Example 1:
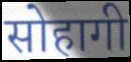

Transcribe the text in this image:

सोहागी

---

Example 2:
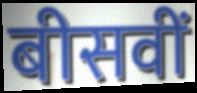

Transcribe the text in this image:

बीसवीं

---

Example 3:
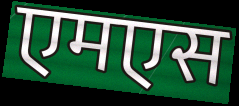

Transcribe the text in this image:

एमएस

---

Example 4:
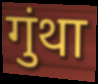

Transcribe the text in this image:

गुंथा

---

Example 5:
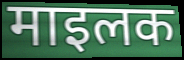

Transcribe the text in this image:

माइलक